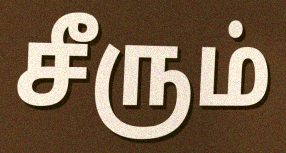
சீரும்